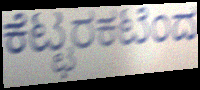
ಕೆಟ್ಟರಕಟೆಂದ